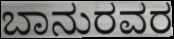
ಬಾನುರವರ